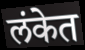
लंकेत